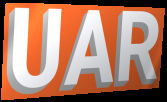
UAR